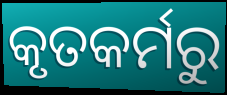
କୃତକର୍ମରୁ